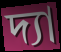
দ্যা